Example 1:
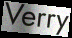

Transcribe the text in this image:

Verry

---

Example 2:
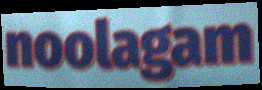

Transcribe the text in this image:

noolagam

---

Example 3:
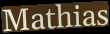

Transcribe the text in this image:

Mathias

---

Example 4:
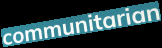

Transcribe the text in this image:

communitarian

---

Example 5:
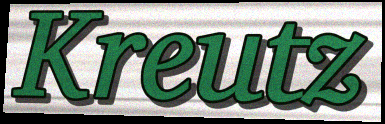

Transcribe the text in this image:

Kreutz